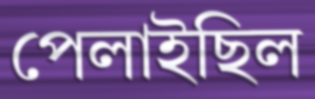
পেলাইছিল